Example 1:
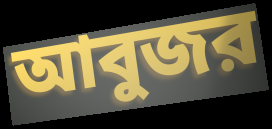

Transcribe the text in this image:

আবুজর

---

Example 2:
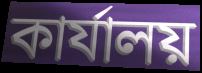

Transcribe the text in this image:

কার্যালয়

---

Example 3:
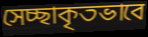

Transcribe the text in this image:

সেচ্ছাকৃতভাবে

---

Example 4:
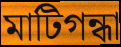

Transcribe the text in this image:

মাটিগন্ধা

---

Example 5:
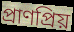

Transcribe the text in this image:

প্রাণপ্রিয়